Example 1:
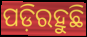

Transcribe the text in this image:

ପଡ଼ିରହୁଛି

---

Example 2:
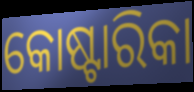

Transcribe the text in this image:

କୋଷ୍ଟାରିକା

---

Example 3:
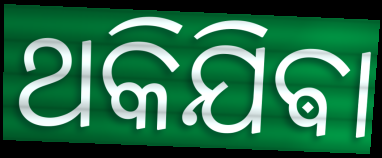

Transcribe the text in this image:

ଥକିଯିଵା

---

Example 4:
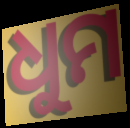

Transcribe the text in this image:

ଧୁମ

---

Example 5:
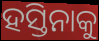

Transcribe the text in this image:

ହସ୍ତିନାକୁ